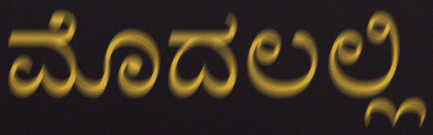
ಮೊದಲಲ್ಲಿ